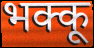
भक्कू